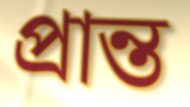
প্ৰান্ত